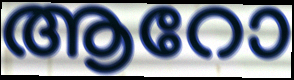
ആറോ